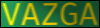
VAZGA